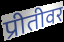
प्रीतीवर